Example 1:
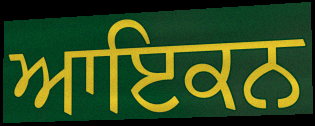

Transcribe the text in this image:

ਆਇਕਨ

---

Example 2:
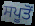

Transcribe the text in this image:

ਸਪੂਤੋਂ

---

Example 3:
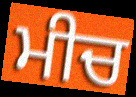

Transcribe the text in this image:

ਮੀਚ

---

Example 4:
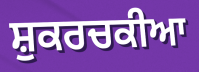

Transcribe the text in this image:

ਸ਼ੁਕਰਚਕੀਆ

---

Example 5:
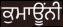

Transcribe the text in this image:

ਕੁਮਾਊਂਨੀ